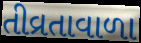
તીવ્રતાવાળા